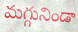
మగ్గునిండా